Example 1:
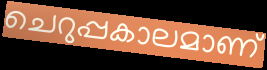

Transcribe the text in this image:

ചെറുപ്പകാലമാണ്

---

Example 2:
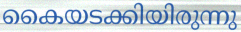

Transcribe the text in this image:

കൈയടക്കിയിരുന്നു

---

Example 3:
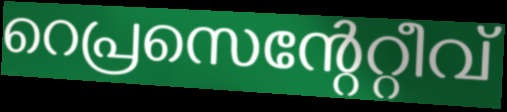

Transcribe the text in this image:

റെപ്രസെന്റേറ്റീവ്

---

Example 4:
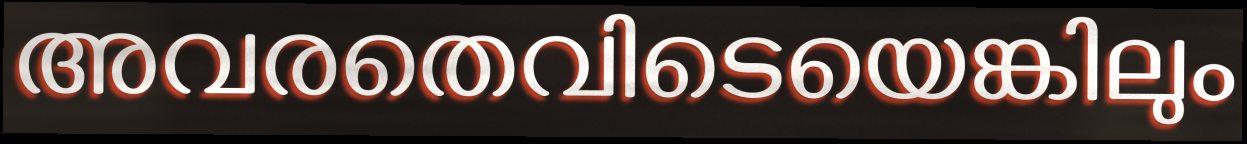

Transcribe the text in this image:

അവരതെവിടെയെങ്കിലും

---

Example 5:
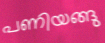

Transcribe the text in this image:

പണിയങ്ങു